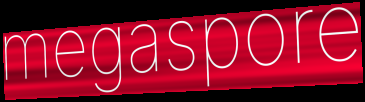
megaspore